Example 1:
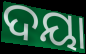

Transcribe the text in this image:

ଦୟା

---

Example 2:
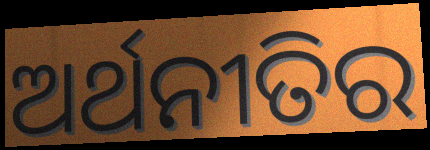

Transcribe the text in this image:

ଅର୍ଥନୀତିର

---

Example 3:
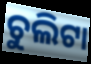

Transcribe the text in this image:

ଚୁଲିଟା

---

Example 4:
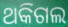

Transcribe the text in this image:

ଥକିଗଲ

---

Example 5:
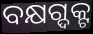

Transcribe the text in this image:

ବକ୍ଷଗ୍ଦକ୍ଟ